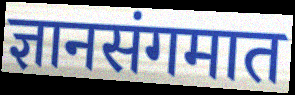
ज्ञानसंगमात